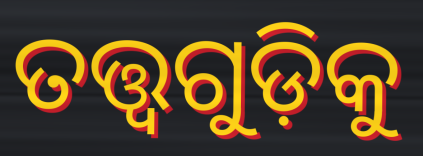
ତତ୍ତ୍ୱଗୁଡ଼ିକୁ